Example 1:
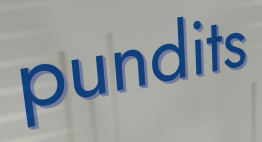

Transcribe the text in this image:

pundits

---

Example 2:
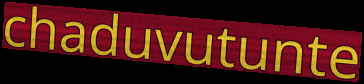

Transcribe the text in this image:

chaduvutunte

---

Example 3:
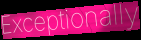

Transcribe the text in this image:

Exceptionally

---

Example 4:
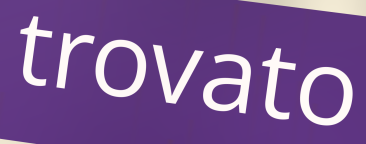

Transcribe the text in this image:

trovato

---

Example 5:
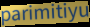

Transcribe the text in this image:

parimitiyu